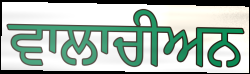
ਵਾਲਾਚੀਅਨ